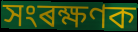
সংৰক্ষণক